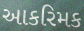
આકરિમક